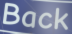
Back